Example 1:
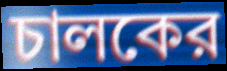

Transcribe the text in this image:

চালকের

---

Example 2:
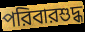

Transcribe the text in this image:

পরিবারশুদ্ধ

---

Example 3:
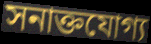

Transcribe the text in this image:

সনাক্তযোগ্য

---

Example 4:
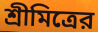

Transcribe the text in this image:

শ্রীমিত্রের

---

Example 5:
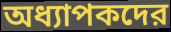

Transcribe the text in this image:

অধ্যাপকদের